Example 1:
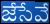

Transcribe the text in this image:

జేసేవే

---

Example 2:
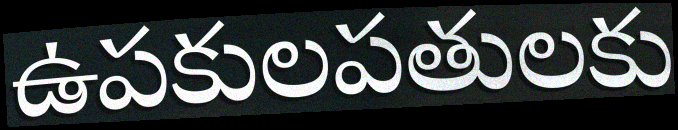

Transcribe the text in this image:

ఉపకులపతులకు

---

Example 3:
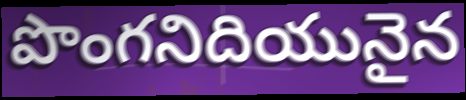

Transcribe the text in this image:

పొంగనిదియునైన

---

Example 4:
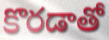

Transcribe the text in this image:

కొరడాతో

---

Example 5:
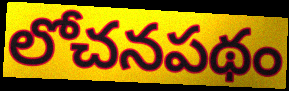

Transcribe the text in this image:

లోచనపథం